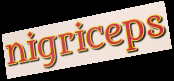
nigriceps